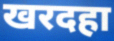
खरदहा